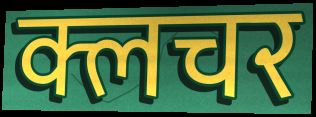
क्लचर